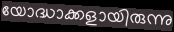
യോദ്ധാക്കളായിരുന്നു